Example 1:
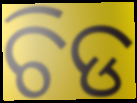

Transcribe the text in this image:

ଚିଡ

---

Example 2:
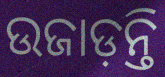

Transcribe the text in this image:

ଉଜାଡ଼ନ୍ତି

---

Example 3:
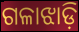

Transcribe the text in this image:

ଗଳାଝାଡ଼ି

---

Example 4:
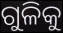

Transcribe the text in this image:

ଗୁଳିକୁ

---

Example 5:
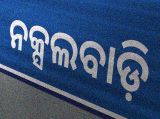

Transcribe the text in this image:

ନକ୍ସଲବାଡ଼ି